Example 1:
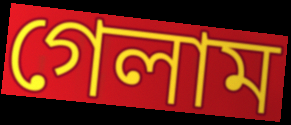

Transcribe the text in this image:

গেলাম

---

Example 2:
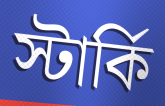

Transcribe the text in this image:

স্টার্কি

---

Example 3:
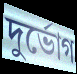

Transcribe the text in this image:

দুর্ভোগ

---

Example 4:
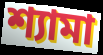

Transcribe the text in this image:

শ্যামা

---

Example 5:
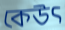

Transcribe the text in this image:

কেউৎ